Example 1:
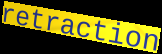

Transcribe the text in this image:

retraction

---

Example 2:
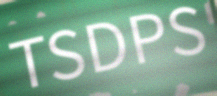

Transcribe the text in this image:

TSDPS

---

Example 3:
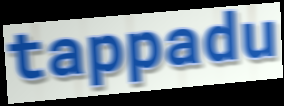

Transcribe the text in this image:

tappadu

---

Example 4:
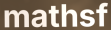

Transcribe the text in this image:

mathsf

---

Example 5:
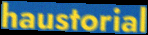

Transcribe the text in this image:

haustorial